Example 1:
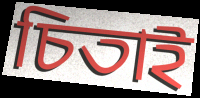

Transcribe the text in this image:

চিতাই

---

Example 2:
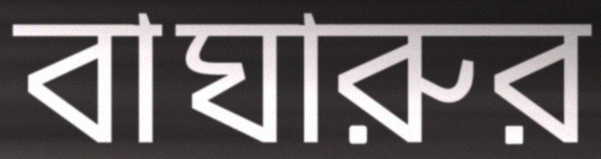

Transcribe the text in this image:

বাঘারুর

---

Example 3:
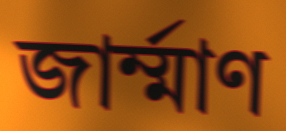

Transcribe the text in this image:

জার্ম্মাণ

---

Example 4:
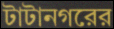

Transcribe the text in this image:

টাটানগরের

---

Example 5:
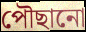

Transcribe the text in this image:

পৌছানো